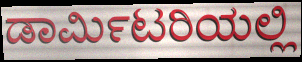
ಡಾರ್ಮಿಟರಿಯಲ್ಲಿ